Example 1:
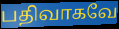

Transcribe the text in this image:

பதிவாகவே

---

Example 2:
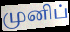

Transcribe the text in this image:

முனிப்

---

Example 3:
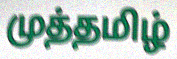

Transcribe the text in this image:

முத்தமிழ்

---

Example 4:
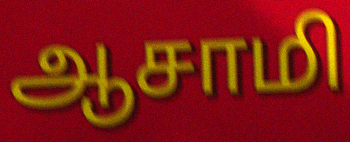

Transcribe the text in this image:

ஆசாமி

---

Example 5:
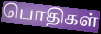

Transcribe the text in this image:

பொதிகள்